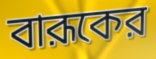
বারূকের